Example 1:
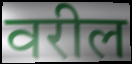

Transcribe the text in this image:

वरील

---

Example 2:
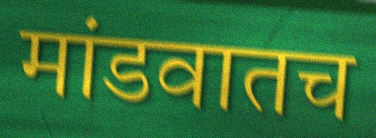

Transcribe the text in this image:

मांडवातच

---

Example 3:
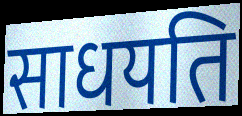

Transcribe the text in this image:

साधयति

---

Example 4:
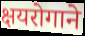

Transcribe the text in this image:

क्षयरोगाने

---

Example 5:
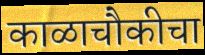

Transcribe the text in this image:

काळाचौकीचा